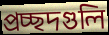
প্রচ্ছদগুলি